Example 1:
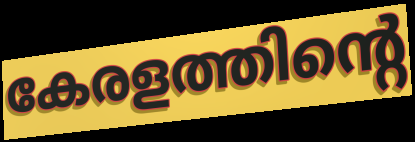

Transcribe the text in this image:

കേരളത്തിന്റെ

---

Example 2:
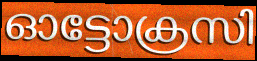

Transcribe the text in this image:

ഓട്ടോക്രസി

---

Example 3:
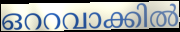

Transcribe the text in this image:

ഒററവാക്കിൽ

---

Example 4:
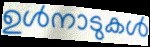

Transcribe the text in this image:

ഉൾനാടുകൾ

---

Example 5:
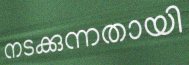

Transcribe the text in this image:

നടക്കുന്നതായി